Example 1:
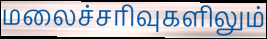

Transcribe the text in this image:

மலைச்சரிவுகளிலும்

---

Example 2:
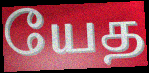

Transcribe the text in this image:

யேத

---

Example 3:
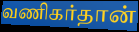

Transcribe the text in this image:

வணிகர்தான்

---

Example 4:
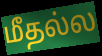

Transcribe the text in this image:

மீதல்ல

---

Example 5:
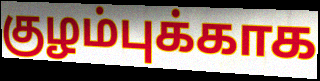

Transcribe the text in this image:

குழம்புக்காக